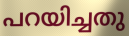
പറയിച്ചതു